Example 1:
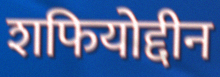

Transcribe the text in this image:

शफियोद्दीन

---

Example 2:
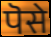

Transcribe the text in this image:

पॆसे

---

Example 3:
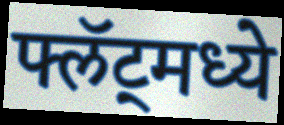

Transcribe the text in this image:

फ्लॅट्मध्ये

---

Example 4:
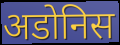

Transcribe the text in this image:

अडोनिस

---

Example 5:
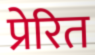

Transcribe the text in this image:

प्रेरित